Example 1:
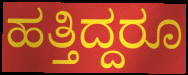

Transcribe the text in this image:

ಹತ್ತಿದ್ದರೂ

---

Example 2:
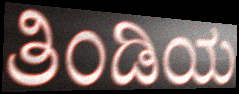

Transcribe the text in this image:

ತಿಂಡಿಯ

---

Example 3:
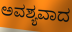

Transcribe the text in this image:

ಅವಶ್ಯವಾದ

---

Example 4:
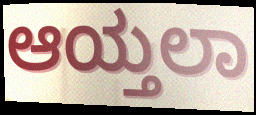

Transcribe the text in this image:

ಆಯ್ತಲಾ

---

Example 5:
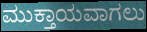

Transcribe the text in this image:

ಮುಕ್ತಾಯವಾಗಲು